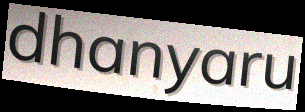
dhanyaru